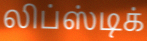
லிப்ஸ்டிக்